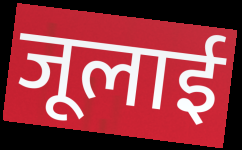
जूलाई